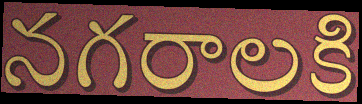
నగరాలకి